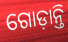
ଗୋଡ଼ାନ୍ତି